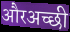
औरअच्छी